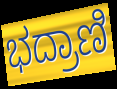
ಭದ್ರಾಣಿ